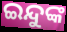
ଇନ୍ଦୁଙ୍କ